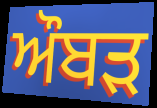
ਔਬੜ